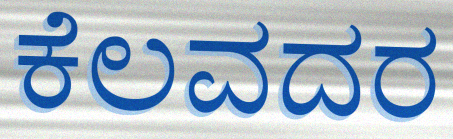
ಕೆಲವದರ